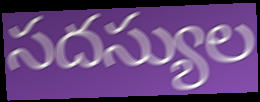
సదస్యుల